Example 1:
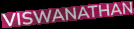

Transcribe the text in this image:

VISWANATHAN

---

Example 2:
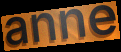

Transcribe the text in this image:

anne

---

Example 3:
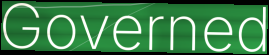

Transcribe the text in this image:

Governed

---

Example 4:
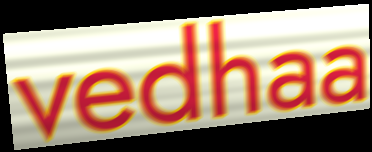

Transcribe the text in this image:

vedhaa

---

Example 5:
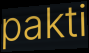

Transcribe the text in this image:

pakti